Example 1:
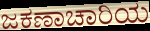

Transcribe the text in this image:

ಜಕಣಾಚಾರಿಯ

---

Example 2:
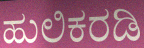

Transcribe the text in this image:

ಹುಲಿಕರಡಿ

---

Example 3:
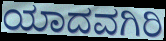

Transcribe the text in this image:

ಯಾದವಗಿರಿ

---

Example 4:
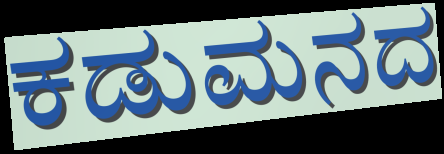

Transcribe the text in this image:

ಕಡುಮನದ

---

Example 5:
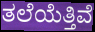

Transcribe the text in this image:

ತಲೆಯೆತ್ತಿವೆ